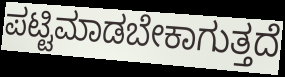
ಪಟ್ಟಿಮಾಡಬೇಕಾಗುತ್ತದೆ